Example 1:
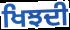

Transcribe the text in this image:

ਖਿਝਦੀ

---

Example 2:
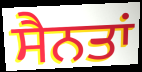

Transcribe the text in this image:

ਸੈਨਤਾਂ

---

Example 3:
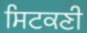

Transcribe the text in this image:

ਸਿਟਕਣੀ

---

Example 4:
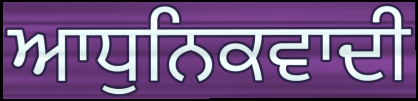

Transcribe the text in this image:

ਆਧੁਨਿਕਵਾਦੀ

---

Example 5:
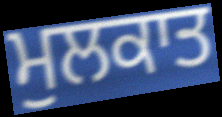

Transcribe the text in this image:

ਮੁਲਕਾਤ